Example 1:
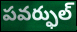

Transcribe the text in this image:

పవర్ఫుల్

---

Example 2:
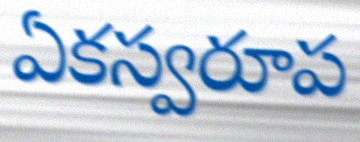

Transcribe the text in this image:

ఏకస్వరూప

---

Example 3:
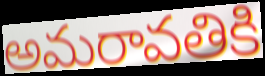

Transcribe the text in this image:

అమరావతికి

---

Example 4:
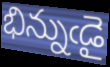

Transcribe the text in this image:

భిన్నుఁడై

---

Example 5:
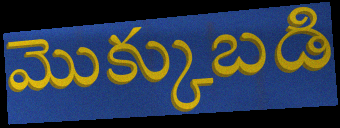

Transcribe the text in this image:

మొక్కుబడి